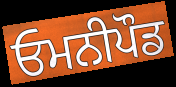
ਓਮਨੀਪੌਡ